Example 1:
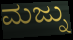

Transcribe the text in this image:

ಮಜ್ನು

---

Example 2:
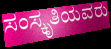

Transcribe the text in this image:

ಸಂಸ್ಕೃತಿಯವರು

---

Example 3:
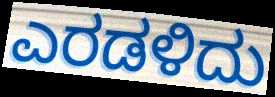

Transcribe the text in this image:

ಎರಡಳಿದು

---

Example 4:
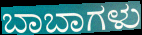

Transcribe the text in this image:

ಬಾಬಾಗಳು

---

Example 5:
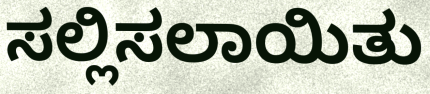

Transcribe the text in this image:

ಸಲ್ಲಿಸಲಾಯಿತು